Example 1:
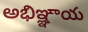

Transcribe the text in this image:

అభిఞ్ఞాయ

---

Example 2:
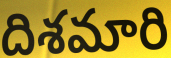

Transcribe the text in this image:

దిశమారి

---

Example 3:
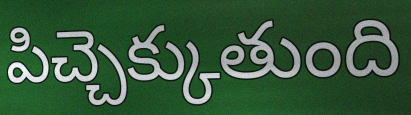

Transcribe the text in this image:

పిచ్చెక్కుతుంది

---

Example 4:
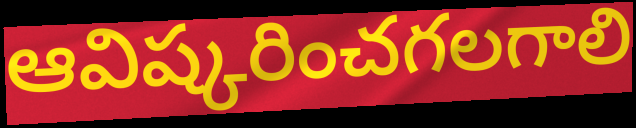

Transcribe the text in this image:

ఆవిష్కరించగలగాలి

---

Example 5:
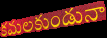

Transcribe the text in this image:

కమలకుండునా